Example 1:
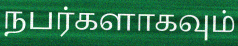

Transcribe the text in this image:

நபர்களாகவும்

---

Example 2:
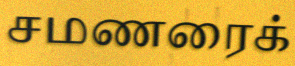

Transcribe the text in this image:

சமணரைக்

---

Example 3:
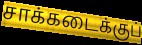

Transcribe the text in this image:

சாக்கடைக்குப்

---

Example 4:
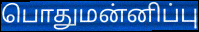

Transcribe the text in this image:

பொதுமன்னிப்பு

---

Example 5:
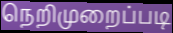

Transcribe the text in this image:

நெறிமுறைப்படி